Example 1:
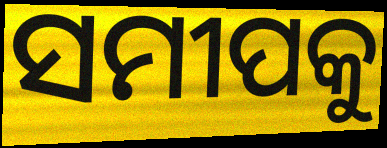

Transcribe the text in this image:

ସମୀପକୁ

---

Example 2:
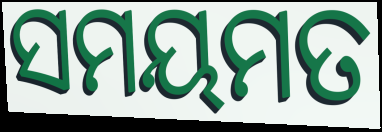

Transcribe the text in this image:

ସମୟମତ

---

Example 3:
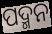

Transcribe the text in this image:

ପଦ୍ମନ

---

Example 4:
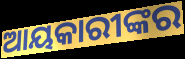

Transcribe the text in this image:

ଆୟକାରୀଙ୍କର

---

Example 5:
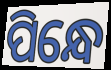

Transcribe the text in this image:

ପିନ୍ଧେ